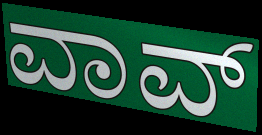
ವಾವ್